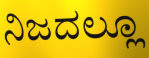
ನಿಜದಲ್ಲೂ